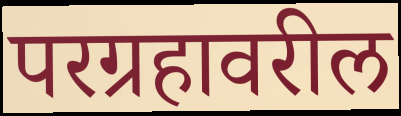
परग्रहावरील